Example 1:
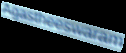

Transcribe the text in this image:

Agastheeswaram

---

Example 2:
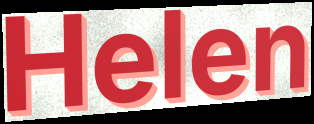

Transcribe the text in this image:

Helen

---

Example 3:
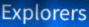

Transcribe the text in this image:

Explorers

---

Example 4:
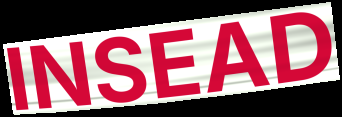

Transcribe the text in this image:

INSEAD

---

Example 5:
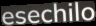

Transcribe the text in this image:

esechilo